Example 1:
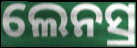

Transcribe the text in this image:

ଲେନସ୍ର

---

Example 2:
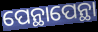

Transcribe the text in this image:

ପେନ୍ଥାପେନ୍ଥା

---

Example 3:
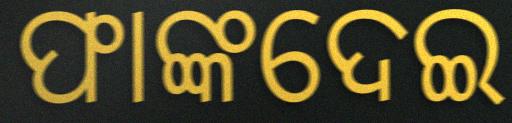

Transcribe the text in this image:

ଫାଙ୍କଦେଇ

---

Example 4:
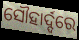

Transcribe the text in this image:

ସୌହାର୍ଦ୍ଦରେ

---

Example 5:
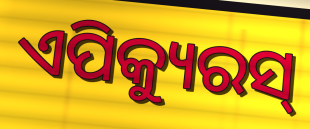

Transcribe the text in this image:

ଏପିକ୍ୟୁରସ୍